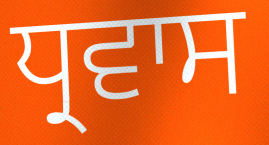
ਧ੍ਰਵਾਸ